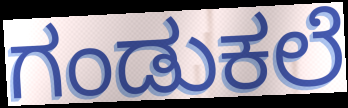
ಗಂಡುಕಲೆ